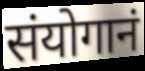
संयोगानं